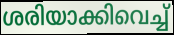
ശരിയാക്കിവെച്ച്